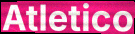
Atletico